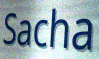
Sacha